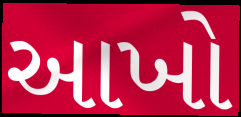
આખો